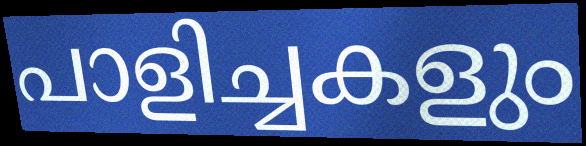
പാളിച്ചകളും